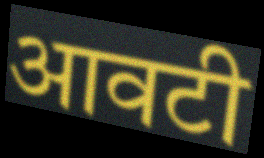
आवटी